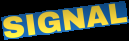
SIGNAL